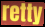
retty